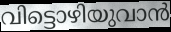
വിട്ടൊഴിയുവാൻ